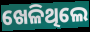
ଖେଳିଥିଲେ